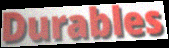
Durables